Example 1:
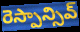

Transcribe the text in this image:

రెస్పాన్సివ్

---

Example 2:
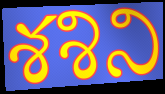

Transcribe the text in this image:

శశిని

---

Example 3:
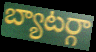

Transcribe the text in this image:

బ్యాటర్గా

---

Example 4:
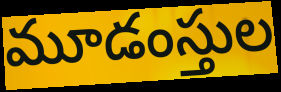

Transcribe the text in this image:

మూడంస్తుల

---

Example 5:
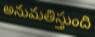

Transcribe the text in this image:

అనుమతిస్తుంది